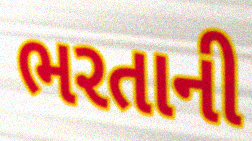
ભરતાની